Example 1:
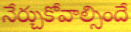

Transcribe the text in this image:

నేర్చుకోవాల్సిందే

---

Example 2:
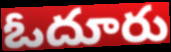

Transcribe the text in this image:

ఓదూరు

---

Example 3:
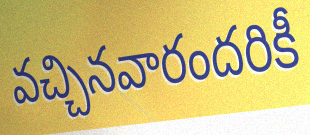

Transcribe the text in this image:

వచ్చినవారందరికీ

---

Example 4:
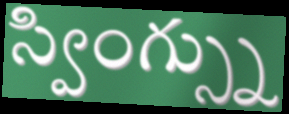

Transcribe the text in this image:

స్వింగ్స్ను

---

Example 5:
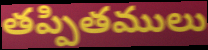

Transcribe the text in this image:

తప్పితములు